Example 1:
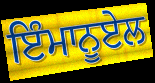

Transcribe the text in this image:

ਇੰਮਾਨੂਏਲ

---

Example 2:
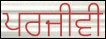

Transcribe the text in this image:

ਪਰਜੀਵੀ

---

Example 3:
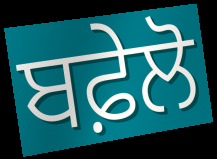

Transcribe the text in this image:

ਬਫ਼ੇਲੋ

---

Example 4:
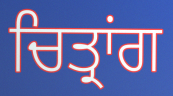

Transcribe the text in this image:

ਚਿਤ੍ਰਾਂਗ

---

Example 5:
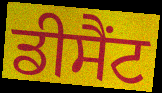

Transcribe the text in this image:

ਡੀਸੈਂਟ